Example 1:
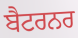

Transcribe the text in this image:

ਬੈਟਰਨਰ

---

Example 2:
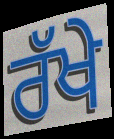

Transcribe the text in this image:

ਰੱਖੇ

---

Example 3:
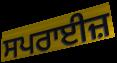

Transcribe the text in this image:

ਸਪਰਾਈਜ਼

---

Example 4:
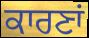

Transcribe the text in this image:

ਕਾਰਣਾਂ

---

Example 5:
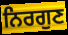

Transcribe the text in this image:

ਨਿਰਗੁਣ